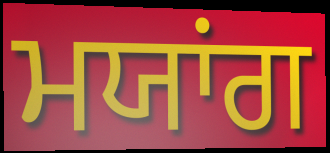
ਮਯਾਂਗ